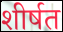
शीर्षत